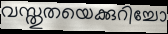
വസ്തുതയെക്കുറിച്ചോ